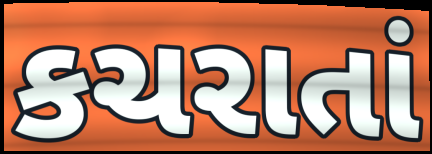
કચરાતાં